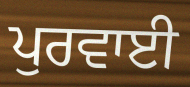
ਪੁਰਵਾਈ